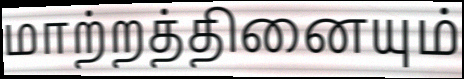
மாற்றத்தினையும்